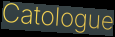
Catologue